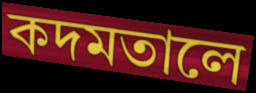
কদমতালে